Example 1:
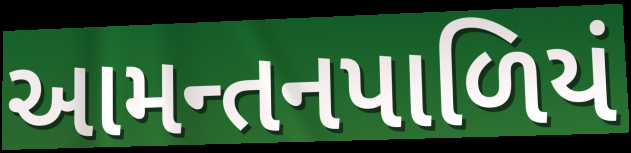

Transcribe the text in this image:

આમન્તનપાળિયં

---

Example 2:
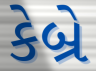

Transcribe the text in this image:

કેબ્રે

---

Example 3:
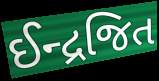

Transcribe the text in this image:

ઈન્દ્રજિત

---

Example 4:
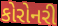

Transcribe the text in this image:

કોરોનરી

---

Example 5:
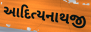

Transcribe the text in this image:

આદિત્યનાથજી